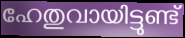
ഹേതുവായിട്ടുണ്ട്